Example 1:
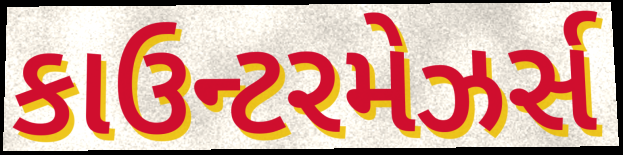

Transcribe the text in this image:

કાઉન્ટરમેઝર્સ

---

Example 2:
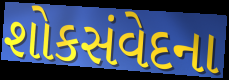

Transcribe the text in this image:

શોકસંવેદના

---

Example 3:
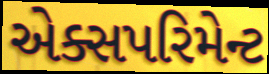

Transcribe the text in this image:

એક્સપરિમેન્ટ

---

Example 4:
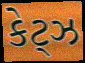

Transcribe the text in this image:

કેટ્ઝ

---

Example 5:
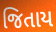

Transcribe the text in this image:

જિતાય